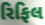
રિફિલ